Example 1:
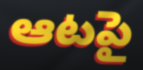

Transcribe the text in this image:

ఆటపై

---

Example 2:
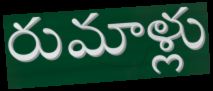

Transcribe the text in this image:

రుమాళ్లు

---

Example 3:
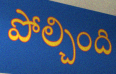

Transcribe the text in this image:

పోల్చింది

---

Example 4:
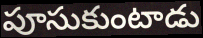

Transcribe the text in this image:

పూసుకుంటాడు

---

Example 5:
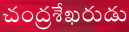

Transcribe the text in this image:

చంద్రశేఖరుడు